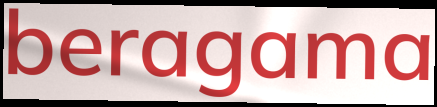
beragama